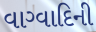
વાગ્વાદિની